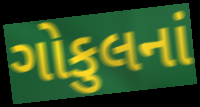
ગોકુલનાં